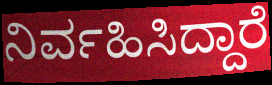
ನಿರ್ವಹಿಸಿದ್ದಾರೆ